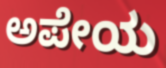
ಅಪೇಯ